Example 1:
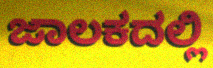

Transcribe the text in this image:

ಜಾಲಕದಲ್ಲಿ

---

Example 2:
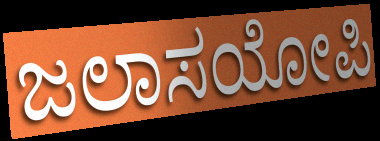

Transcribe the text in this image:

ಜಲಾಸಯೋಪಿ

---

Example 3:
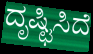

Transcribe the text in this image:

ದೃಷ್ಟಿಸಿದೆ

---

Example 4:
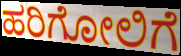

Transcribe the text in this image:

ಹರಿಗೋಲಿಗೆ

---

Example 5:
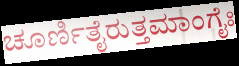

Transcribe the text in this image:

ಚೂರ್ಣಿತೈರುತ್ತಮಾಂಗೈಃ